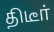
திடீர்